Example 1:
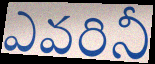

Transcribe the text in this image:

ఎవరినీ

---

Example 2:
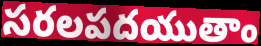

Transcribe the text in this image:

సరలపదయుతాం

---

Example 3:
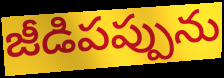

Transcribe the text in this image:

జీడిపప్పును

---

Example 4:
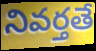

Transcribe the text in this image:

నివర్తతే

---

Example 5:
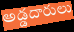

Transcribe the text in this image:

అడ్డదారులు